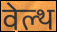
वेल्‍थ